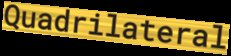
Quadrilateral